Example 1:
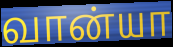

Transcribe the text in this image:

வான்யா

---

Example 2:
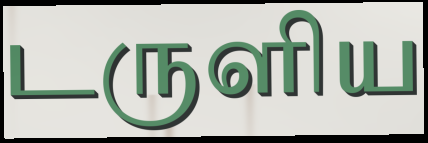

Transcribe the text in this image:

டருளிய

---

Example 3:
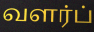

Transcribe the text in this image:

வளர்ப்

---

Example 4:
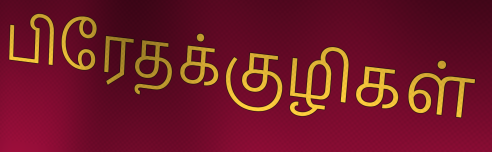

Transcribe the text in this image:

பிரேதக்குழிகள்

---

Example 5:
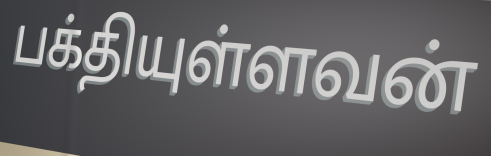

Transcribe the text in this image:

பக்தியுள்ளவன்